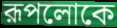
রূপলোকে